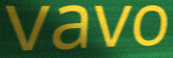
vavo